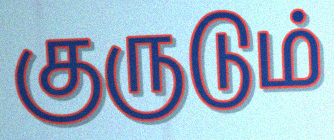
குருடும்